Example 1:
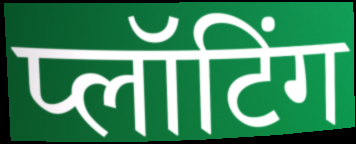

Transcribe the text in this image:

प्लॉटिंग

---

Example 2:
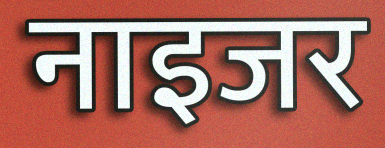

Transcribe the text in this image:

नाइजर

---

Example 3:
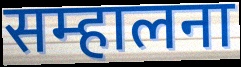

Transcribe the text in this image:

सम्हालना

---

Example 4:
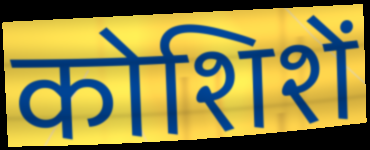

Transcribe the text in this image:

कोशिशें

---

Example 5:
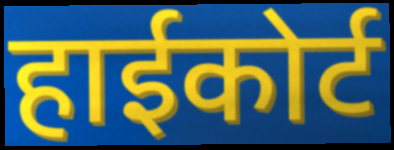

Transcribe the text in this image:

हाईकोर्ट